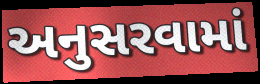
અનુસરવામાં